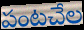
పంటచేల